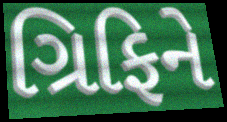
ગ્રિફિને